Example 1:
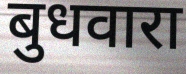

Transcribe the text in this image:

बुधवारा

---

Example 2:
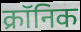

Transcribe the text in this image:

क्रॉनिक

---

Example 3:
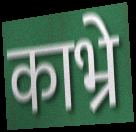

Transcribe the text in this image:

काभ्रे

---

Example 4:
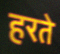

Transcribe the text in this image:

हरते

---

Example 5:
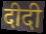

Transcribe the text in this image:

दीदी